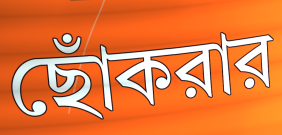
ছোঁকরার